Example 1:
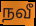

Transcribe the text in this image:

நவீ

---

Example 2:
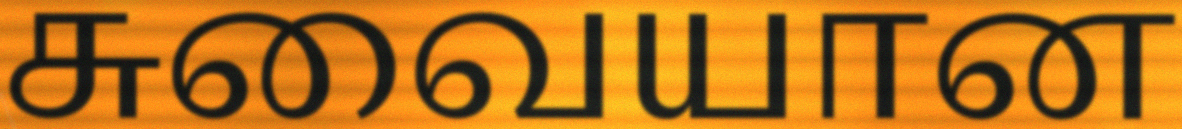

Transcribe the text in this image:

சுவையான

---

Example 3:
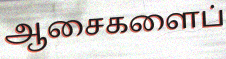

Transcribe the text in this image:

ஆசைகளைப்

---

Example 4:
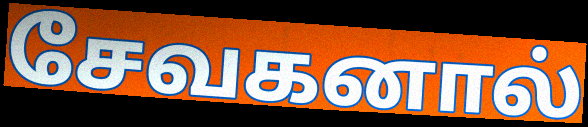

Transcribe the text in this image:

சேவகனால்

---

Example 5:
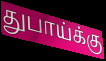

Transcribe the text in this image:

துபாய்க்கு